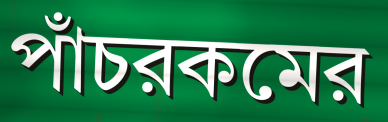
পাঁচরকমের